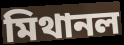
মিথানল